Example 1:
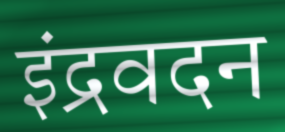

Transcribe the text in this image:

इंद्रवदन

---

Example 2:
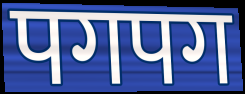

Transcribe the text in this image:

पगपग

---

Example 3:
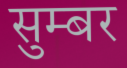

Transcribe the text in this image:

सुम्बर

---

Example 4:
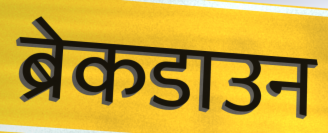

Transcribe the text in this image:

ब्रेकडाउन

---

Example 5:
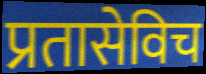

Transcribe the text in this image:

प्रतासेविच